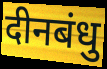
दीनबंधु